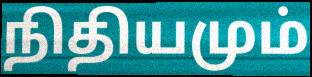
நிதியமும்